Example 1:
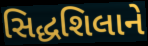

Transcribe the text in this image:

સિદ્ધશિલાને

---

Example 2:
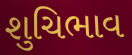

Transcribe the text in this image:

શુચિભાવ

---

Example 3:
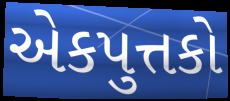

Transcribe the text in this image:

એકપુત્તકો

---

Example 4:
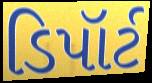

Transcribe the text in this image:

ડિપૉર્ટ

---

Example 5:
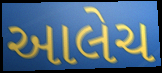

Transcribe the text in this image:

આલેચ